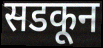
सडकून